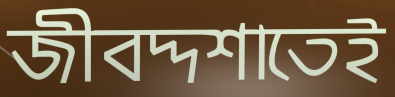
জীবদ্দশাতেই